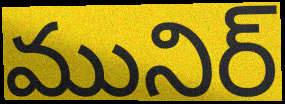
మునిర్